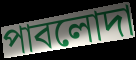
পাবলোদা